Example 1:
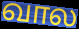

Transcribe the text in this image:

வால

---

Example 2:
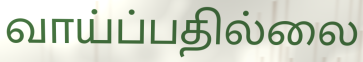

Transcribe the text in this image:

வாய்ப்பதில்லை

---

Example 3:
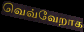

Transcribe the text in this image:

வெவ்வேறாக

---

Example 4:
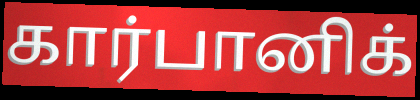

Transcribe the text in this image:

கார்பானிக்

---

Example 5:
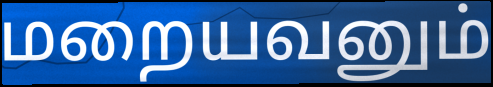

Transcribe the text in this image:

மறையவனும்